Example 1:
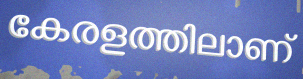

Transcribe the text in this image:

കേരളത്തിലാണ്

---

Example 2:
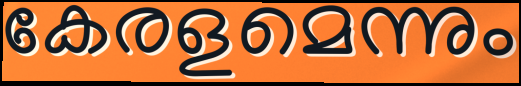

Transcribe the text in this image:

കേരളമെന്നും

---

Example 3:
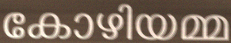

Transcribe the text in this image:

കോഴിയമ്മ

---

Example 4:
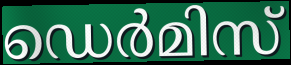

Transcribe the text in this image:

ഡെർമിസ്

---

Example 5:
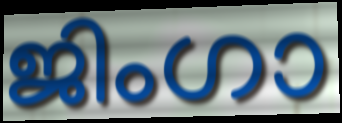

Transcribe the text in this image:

ജിംഗാ